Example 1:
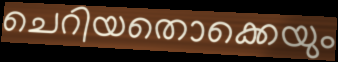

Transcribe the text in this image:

ചെറിയതൊക്കെയും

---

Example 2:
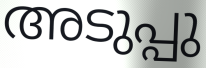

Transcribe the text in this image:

അടുപ്പു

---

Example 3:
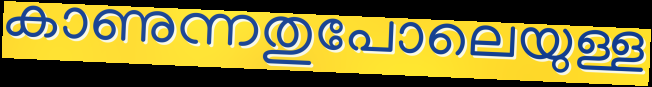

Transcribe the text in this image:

കാണുന്നതുപോലെയുള്ള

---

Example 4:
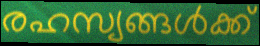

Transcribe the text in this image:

രഹസ്യങ്ങൾക്ക്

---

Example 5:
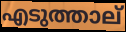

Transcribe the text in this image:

എടുത്താല്